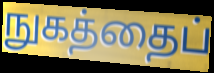
நுகத்தைப்